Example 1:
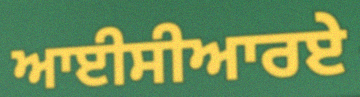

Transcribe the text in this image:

ਆਈਸੀਆਰਏ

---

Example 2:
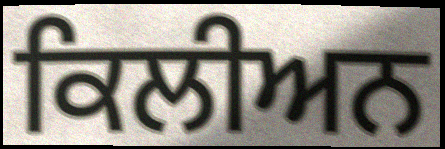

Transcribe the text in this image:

ਕਿਲੀਅਨ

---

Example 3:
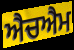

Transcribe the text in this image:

ਐਚਐਮ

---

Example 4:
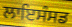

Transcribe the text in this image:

ਲਾਇਸੰਸਡ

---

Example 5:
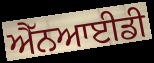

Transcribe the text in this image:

ਐੱਨਆਈਡੀ